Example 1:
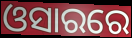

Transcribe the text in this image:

ଓସାରରେ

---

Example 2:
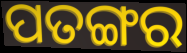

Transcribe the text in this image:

ପତଙ୍ଗର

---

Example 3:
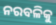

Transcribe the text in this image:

ନରବଳିକୁ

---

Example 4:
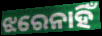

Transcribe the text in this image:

ଝରେନାହିଁ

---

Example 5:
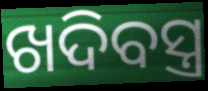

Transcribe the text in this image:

ଖଦିବସ୍ତ୍ର